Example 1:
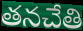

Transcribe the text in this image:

తనచేతి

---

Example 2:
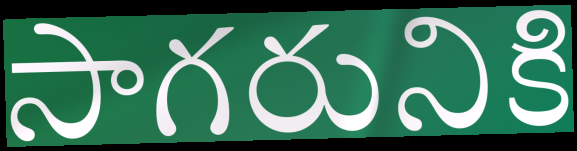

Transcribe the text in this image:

సాగరునికి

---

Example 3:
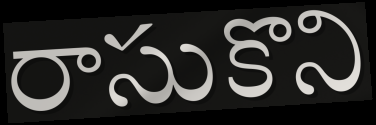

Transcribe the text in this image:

రాసుకొని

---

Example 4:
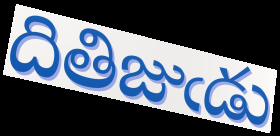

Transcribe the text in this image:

దితిజుఁడు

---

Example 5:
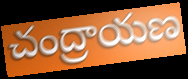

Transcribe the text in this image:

చంద్రాయణ